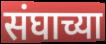
संघाच्या